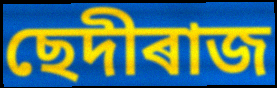
ছেদীৰাজ